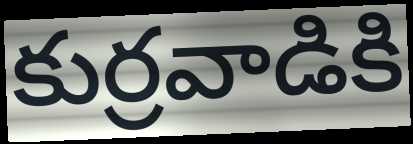
కుర్రవాడికి